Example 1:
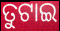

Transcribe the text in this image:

ତୁଟାଇ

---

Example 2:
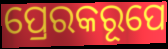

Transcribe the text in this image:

ପ୍ରେରକରୂପେ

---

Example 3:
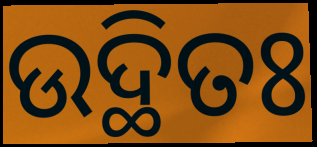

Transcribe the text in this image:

ଉଦ୍ଥିତଃ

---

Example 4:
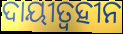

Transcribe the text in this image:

ଦାୟୀତ୍ୱହୀନ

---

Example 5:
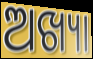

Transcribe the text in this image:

ଅଖ୍ୟା